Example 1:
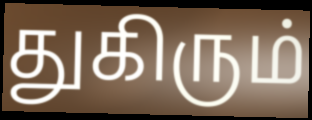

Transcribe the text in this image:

துகிரும்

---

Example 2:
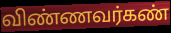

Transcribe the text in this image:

விண்ணவர்கண்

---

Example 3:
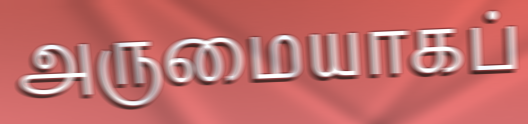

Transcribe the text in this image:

அருமையாகப்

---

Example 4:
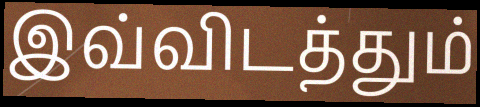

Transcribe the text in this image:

இவ்விடத்தும்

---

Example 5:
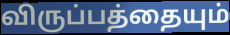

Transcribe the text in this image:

விருப்பத்தையும்